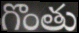
గొంతు